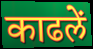
काढलें